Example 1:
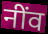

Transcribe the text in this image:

नींव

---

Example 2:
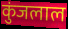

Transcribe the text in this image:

कुंजलाल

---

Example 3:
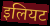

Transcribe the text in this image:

इलियट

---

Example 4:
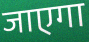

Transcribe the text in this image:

जाएगा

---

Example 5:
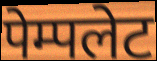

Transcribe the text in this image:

पेम्पलेट